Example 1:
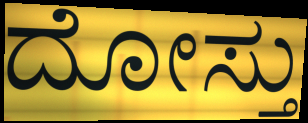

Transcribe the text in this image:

ದೋಸ್ತು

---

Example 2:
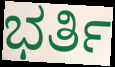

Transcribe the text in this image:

ಭರ್ತಿ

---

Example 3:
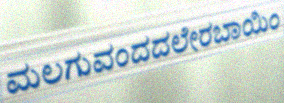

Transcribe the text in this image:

ಮಲಗುವಂದದಲೇರಬಾಯಿಂ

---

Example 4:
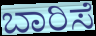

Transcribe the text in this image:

ಬಾರಿಸೆ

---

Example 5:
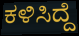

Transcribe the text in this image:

ಕಳಿಸಿದ್ದೆ